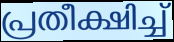
പ്രതീക്ഷിച്ച്